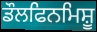
ਡੌਲਫਿਨਮਿਸ਼ੂ